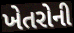
ખેતરોની